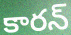
కారన్